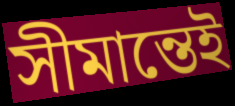
সীমান্তেই